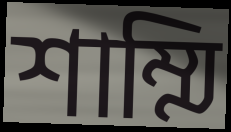
শাম্মি